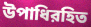
উপাধিরহিত